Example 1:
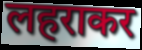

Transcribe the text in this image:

लहराकर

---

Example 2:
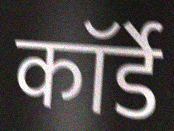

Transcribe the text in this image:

कॉर्डे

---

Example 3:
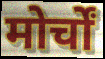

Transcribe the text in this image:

मोर्चों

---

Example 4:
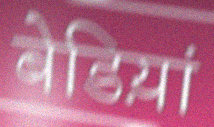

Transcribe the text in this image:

बेडिय़ां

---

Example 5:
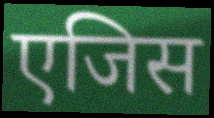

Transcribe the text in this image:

एजिस